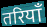
तरियाँ